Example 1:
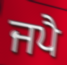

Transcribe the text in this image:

ਜਪੈ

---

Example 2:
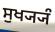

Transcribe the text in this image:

ਸੁਖ੍ਯ੍ਯੰ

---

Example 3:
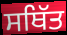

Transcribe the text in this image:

ਸਥਿੱਤ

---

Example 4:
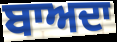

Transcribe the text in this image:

ਬਾਅਦਾ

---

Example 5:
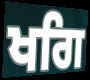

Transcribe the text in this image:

ਖਗਿ